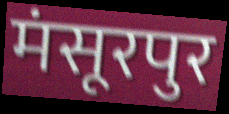
मंसूरपुर